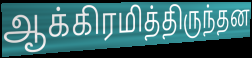
ஆக்கிரமித்திருந்தன